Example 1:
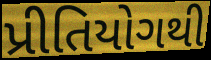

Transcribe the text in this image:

પ્રીતિયોગથી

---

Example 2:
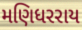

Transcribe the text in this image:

મણિધરરાય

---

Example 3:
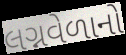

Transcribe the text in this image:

લગ્નવેળાનો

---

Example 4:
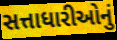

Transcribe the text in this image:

સત્તાધારીઓનું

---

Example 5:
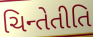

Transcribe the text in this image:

ચિન્તેતીતિ